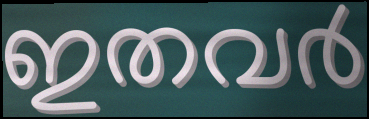
ഇതവർ